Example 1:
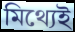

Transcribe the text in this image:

মিথ্যেই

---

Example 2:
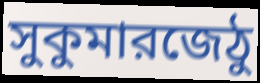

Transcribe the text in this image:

সুকুমারজেঠু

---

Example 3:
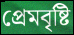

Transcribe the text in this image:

প্রেমবৃষ্টি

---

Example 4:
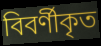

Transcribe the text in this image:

বিবর্ণীকৃত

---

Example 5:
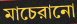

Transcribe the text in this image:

মাচেরানো